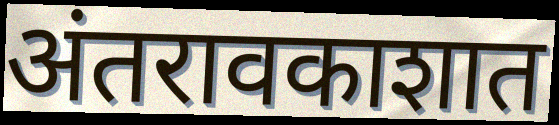
अंतरावकाशात